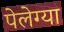
पेलेग्या